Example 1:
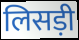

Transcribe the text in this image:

लिसड़ी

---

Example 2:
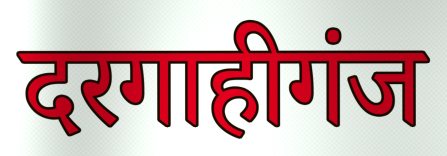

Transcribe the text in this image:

दरगाहीगंज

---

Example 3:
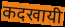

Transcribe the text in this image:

कदखायी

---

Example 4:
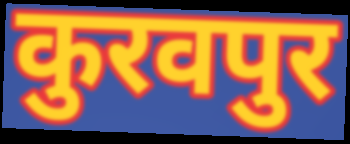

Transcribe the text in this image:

कुरवपुर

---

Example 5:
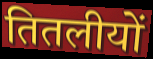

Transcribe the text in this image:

तितलीयों